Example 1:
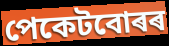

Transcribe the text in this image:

পেকেটবোৰৰ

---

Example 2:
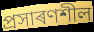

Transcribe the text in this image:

প্ৰসাৰণশীল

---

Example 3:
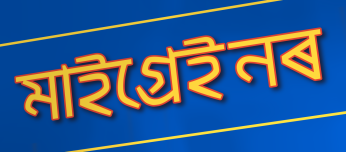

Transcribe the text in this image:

মাইগ্ৰেইনৰ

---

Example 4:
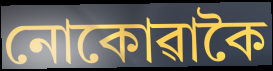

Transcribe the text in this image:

নোকোৱাকৈ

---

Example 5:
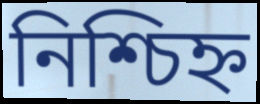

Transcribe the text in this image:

নিশ্চিহ্ন